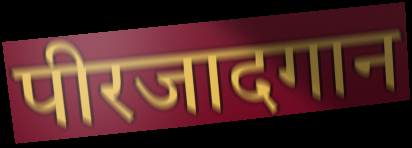
पीरजादगान